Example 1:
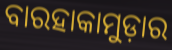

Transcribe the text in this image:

ବାରହାକାମୁଡ଼ାର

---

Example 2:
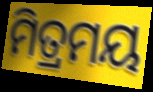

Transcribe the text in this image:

ମିତ୍ରମୟ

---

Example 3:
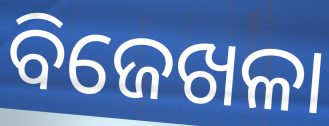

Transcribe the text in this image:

ବିଜେଖଳା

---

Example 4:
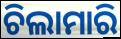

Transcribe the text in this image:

ଚିଲାମାରି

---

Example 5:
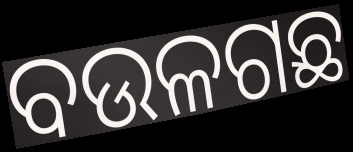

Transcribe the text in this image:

ବଉଳଗଛ